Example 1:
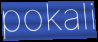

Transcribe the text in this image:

pokali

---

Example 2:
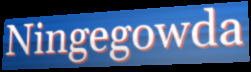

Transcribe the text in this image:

Ningegowda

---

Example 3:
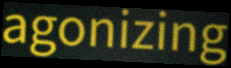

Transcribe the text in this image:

agonizing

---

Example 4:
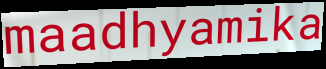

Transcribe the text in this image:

maadhyamika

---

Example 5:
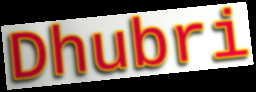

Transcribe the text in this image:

Dhubri